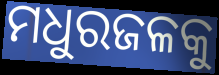
ମଧୁରଜଳକୁ